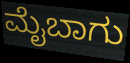
ಮೈಬಾಗು